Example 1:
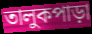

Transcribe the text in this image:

তালুকপাড়া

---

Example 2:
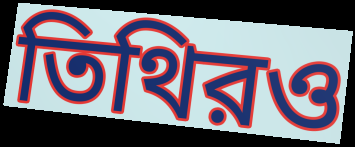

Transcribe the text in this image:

তিথিরও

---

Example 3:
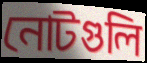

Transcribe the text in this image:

নোটগুলি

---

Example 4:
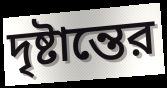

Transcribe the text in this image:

দৃষ্টান্তের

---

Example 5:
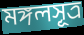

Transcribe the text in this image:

মঙ্গলসূত্র